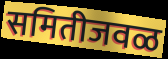
समितीजवळ